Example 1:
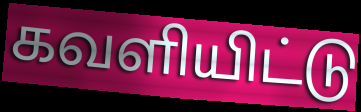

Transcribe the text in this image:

கவளியிட்டு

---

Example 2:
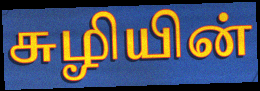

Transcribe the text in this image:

சுழியின்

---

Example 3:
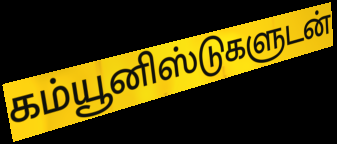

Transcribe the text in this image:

கம்யூனிஸ்டுகளுடன்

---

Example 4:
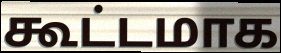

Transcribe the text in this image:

கூட்டமாக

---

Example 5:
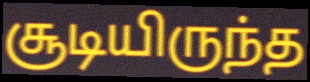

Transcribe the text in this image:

சூடியிருந்த